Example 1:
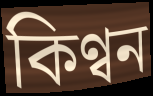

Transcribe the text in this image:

কিণ্বন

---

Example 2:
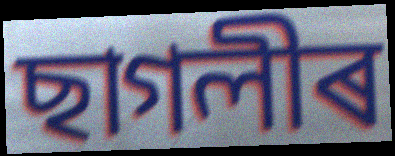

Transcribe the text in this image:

ছাগলীৰ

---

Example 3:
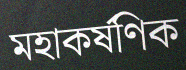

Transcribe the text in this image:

মহাকৰ্ষণিক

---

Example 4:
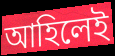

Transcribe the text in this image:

আহিলেই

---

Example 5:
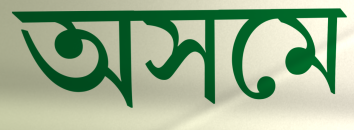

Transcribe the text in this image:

অসমে